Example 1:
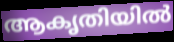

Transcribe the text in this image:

ആകൃതിയിൽ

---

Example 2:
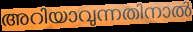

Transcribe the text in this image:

അറിയാവുന്നതിനാൽ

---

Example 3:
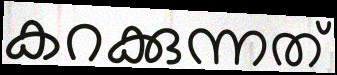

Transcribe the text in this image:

കറക്കുന്നത്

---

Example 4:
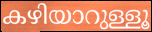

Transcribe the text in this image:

കഴിയാറുള്ളൂ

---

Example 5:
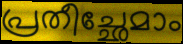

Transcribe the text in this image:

പ്രതീച്ഛേമാം